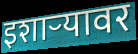
इशाऱ्यावर